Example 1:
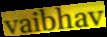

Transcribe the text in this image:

vaibhav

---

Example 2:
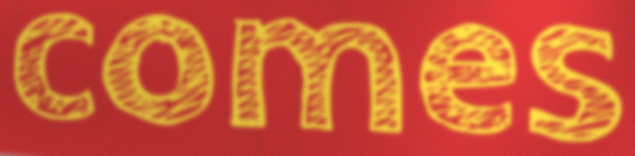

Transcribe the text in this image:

comes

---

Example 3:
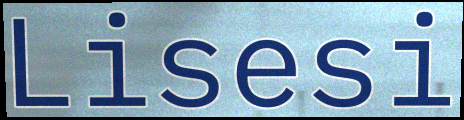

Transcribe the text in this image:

Lisesi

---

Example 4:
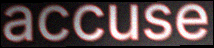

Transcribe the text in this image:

accuse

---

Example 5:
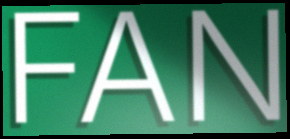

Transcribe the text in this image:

FAN